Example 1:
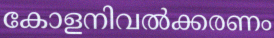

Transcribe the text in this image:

കോളനിവൽക്കരണം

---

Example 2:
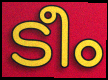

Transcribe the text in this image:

ടീം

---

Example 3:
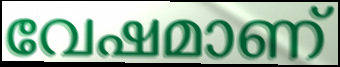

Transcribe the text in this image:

വേഷമാണ്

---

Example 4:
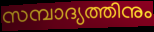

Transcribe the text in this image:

സമ്പാദ്യത്തിനും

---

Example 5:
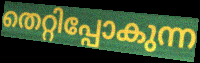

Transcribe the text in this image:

തെറ്റിപ്പോകുന്ന